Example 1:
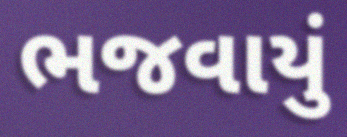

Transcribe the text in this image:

ભજવાયું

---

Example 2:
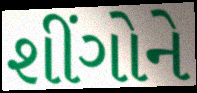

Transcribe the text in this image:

શીંગોને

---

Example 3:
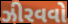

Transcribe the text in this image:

ઝીરવવો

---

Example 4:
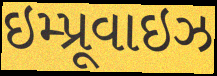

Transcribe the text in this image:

ઇમ્પ્રૂવાઇઝ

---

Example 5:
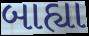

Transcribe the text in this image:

બાહ્યા